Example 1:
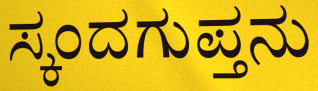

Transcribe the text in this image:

ಸ್ಕಂದಗುಪ್ತನು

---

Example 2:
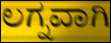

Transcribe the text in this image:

ಲಗ್ನವಾಗಿ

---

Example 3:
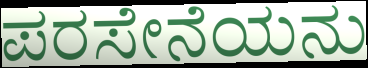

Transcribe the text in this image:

ಪರಸೇನೆಯನು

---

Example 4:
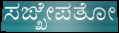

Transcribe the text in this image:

ಸಙ್ಖೇಪತೋ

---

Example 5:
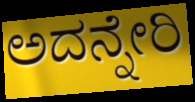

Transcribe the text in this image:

ಅದನ್ನೇರಿ